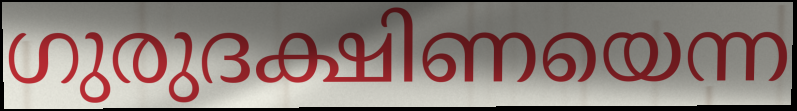
ഗുരുദക്ഷിണയെന്ന